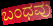
ಬಂಧವು